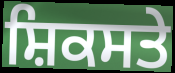
ਸ਼ਿਕਸਤੇ